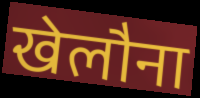
खेलौना